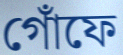
গোঁফে